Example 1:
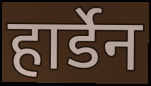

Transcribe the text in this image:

हार्डेन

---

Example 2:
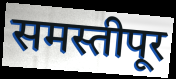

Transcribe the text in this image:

समस्तीपूर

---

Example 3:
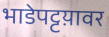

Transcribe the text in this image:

भाडेपट्टय़ावर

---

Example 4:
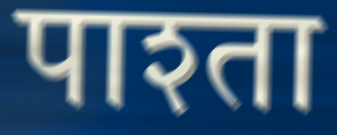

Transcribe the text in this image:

पाश्ता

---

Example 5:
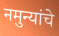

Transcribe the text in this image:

नमुन्यांचे